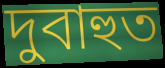
দুবাহুত